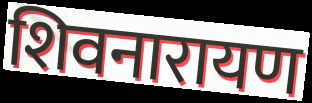
शिवनारायण